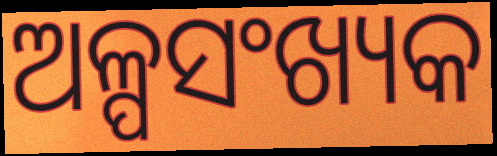
ଅଳ୍ପସଂଖ୍ୟକ